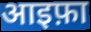
आइफ़ा